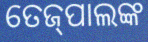
ତେଜ୍‌ପାଲଙ୍କ